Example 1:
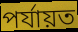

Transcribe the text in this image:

পৰ্যায়ত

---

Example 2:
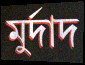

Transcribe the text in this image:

মুৰ্দাদ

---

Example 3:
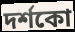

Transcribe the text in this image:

দৰ্শকো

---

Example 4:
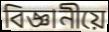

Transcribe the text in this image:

বিজ্ঞানীয়ে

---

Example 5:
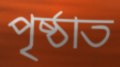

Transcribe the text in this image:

পৃষ্ঠাত